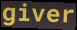
giver